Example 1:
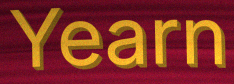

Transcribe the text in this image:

Yearn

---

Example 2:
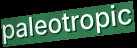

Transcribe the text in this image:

paleotropic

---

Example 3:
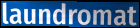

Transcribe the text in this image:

laundromat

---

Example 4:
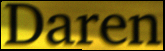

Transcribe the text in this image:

Daren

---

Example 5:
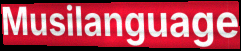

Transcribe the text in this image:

Musilanguage